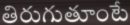
తిరుగుతూంటే